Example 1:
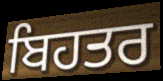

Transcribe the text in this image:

ਬਿਹਤਰ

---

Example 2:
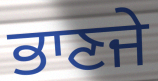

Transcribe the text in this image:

ਭਾਣਜੇ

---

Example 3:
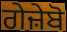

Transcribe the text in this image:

ਗੇਜ਼ੇਬੋ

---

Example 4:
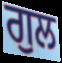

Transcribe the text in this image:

ਗੁਲ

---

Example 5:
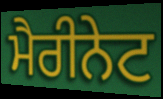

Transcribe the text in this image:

ਮੈਰੀਨੇਟ